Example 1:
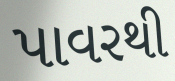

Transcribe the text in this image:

પાવરથી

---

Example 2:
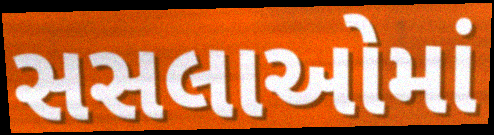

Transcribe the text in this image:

સસલાઓમાં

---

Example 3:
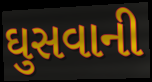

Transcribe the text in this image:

ઘુસવાની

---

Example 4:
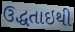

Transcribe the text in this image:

ઉદ્ધતાઇથી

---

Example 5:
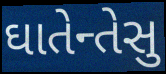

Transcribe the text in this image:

ઘાતેન્તેસુ